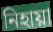
নিহায়া